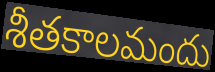
శీతకాలమందు